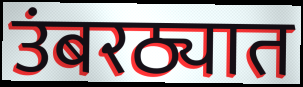
उंबरठ्यात